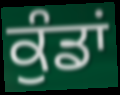
ਕੁੰਡਾਂ